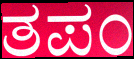
ತಪಂ